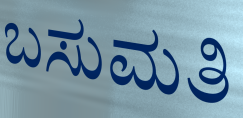
ಬಸುಮತಿ